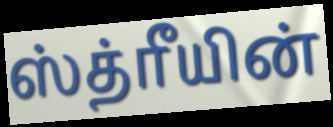
ஸ்த்ரீயின்